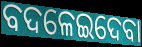
ବଦଳେଇଦେବା